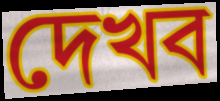
দেখব